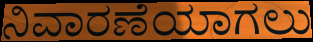
ನಿವಾರಣೆಯಾಗಲು